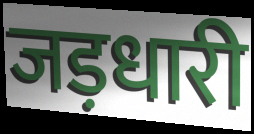
जड़धारी